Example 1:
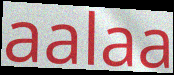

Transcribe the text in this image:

aalaa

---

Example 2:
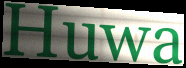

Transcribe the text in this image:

Huwa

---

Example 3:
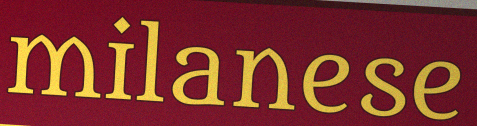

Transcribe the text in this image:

milanese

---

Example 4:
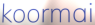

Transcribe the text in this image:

koormai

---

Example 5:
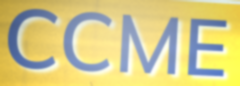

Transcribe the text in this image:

CCME